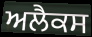
ਅਲੈਕਸ